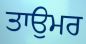
ਤਾਉਮਰ